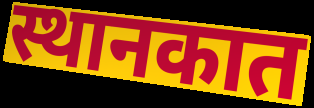
स्थानकात